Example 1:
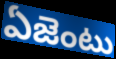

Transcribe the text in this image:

ఏజెంటు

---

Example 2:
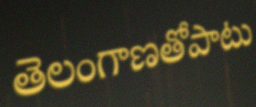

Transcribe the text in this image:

తెలంగాణతోపాటు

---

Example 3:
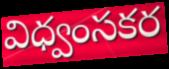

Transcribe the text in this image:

విధ్వంసకర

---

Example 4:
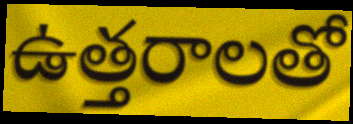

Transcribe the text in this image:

ఉత్తరాలతో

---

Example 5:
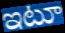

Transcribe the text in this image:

ఇటూ